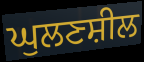
ਘੁਲਣਸ਼ੀਲ